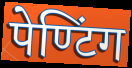
पेण्टिंग